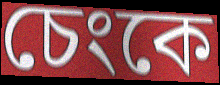
চেংকে